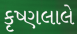
કૃષ્ણલાલે